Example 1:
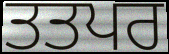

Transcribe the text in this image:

ਤਤਪਰ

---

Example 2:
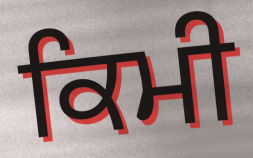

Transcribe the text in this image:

ਕਿਮੀ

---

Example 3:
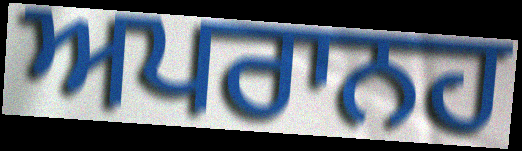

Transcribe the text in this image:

ਅਪਰਾਨਹ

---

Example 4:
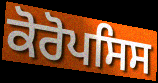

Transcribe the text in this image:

ਕੋਰੋਪਸਿਸ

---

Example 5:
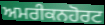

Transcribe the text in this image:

ਅਮਰੀਕਨਹੋਰਟ